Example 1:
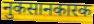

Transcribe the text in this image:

नुकसानकारक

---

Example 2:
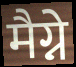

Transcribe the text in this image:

मैग्ने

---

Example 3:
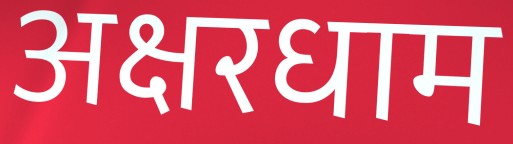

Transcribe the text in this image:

अक्षरधाम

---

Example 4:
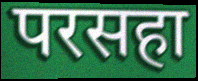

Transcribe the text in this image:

परसहा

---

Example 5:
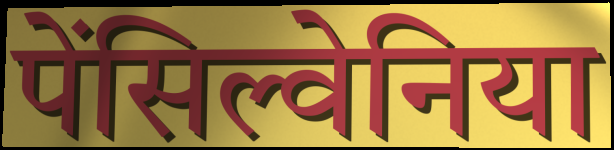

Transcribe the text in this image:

पेंसिल्वेनिया